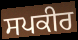
ਸਪਕੀਰ